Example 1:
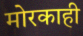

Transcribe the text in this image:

मोरकाही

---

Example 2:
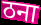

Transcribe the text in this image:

ठना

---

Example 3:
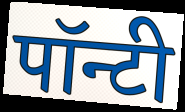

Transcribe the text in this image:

पॉन्टी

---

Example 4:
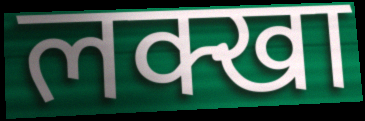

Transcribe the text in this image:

लक्खा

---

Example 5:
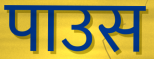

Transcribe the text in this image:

पाउस